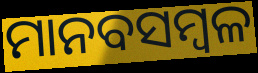
ମାନବସମ୍ବଳ